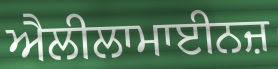
ਐਲੀਲਾਮਾਈਨਜ਼